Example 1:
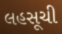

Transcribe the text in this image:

લહસૂચી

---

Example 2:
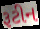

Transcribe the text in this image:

રૂટીન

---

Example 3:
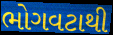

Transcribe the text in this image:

ભોગવટાથી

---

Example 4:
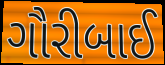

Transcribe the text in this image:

ગૌરીબાઈ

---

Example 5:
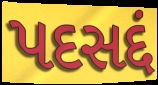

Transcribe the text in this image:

પદસદ્દં